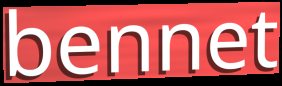
bennet